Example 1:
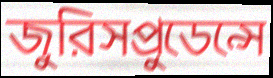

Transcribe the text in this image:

জুরিসপ্রুডেন্সে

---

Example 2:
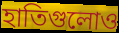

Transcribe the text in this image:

হাতিগুলোও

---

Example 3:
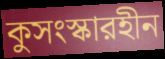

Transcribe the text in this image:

কুসংস্কারহীন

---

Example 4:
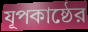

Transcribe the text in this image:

যূপকাষ্ঠের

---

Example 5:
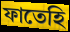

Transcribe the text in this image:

ফাতেহি